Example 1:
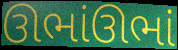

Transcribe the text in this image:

ઊભાંઊભાં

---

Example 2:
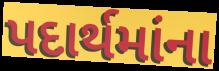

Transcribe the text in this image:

પદાર્થમાંના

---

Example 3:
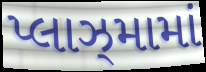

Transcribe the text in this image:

પ્લાઝ્મામાં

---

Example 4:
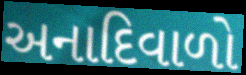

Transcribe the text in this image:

અનાદિવાળો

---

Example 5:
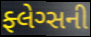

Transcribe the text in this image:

ફ્લેગ્સની